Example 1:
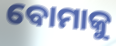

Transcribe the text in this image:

ବୋମାକୁ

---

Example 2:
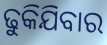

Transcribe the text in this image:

ଢୁକିଯିବାର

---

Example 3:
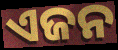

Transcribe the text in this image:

ଏଜନ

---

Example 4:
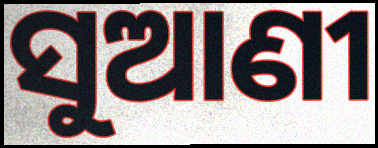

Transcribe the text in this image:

ସୁଆଣୀ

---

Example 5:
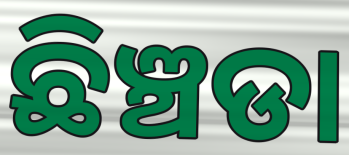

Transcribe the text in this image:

ଛିଞ୍ଚଡା